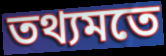
তথ্যমতে